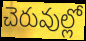
చెరువుల్లో